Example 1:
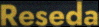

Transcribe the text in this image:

Reseda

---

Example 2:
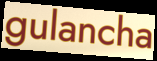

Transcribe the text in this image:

gulancha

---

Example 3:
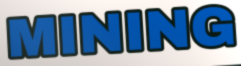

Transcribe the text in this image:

MINING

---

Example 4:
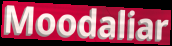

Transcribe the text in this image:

Moodaliar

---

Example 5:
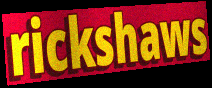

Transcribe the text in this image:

rickshaws